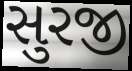
સુરજી